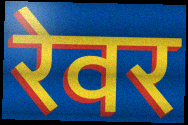
रेवर